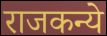
राजकन्ये